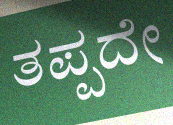
ತಪ್ಪದೇ